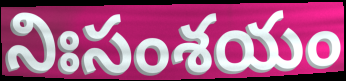
నిఃసంశయం